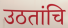
उठतांचि